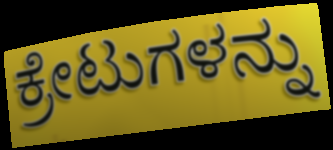
ಕ್ರೇಟುಗಳನ್ನು